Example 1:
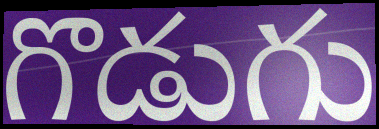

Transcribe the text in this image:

గొడుగు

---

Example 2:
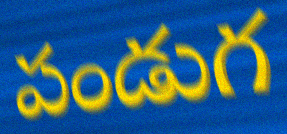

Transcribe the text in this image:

పండుగ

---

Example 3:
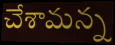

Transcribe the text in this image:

చేశామన్న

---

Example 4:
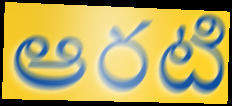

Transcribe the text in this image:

ఆరటి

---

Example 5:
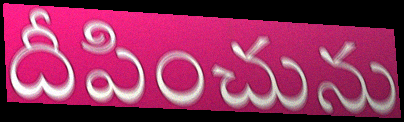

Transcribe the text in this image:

దీపించును